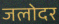
जलोदर